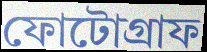
ফোটোগ্রাফ